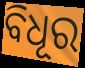
ବିଧୂର